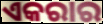
ଏକରାର